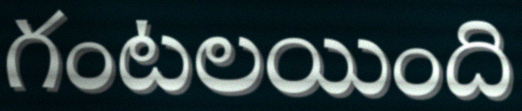
గంటలయింది